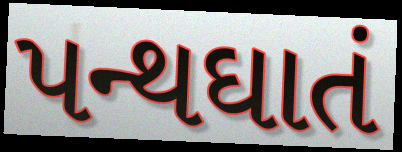
પન્થઘાતં